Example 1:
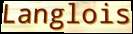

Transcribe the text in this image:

Langlois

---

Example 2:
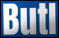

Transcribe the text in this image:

Butl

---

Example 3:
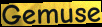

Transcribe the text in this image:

Gemuse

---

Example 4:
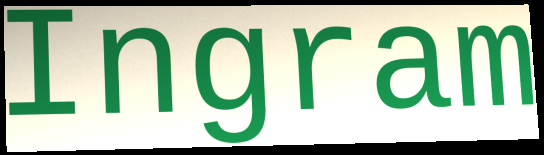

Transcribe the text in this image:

Ingram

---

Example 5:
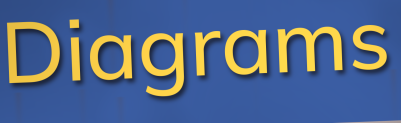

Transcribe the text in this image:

Diagrams